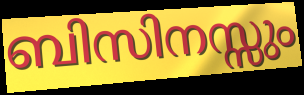
ബിസിനസ്സും